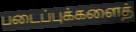
படைப்புக்களைத்